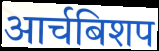
आर्चबिशप